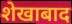
शेखाबाद